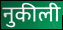
नुकीली